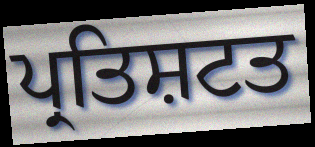
ਪ੍ਰਤਿਸ਼ਟਤ